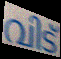
വിട്